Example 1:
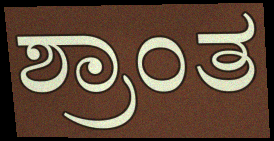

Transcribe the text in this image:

ಶ್ರಾಂತ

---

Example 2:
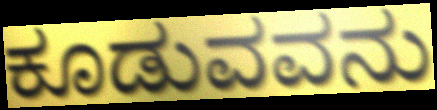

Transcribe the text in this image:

ಕೂಡುವವನು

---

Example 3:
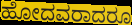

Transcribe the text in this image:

ಹೋದವರಾದರೂ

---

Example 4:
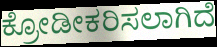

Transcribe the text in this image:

ಕ್ರೋಡೀಕರಿಸಲಾಗಿದೆ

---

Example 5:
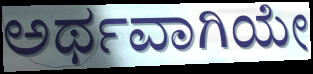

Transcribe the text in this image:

ಅರ್ಥವಾಗಿಯೇ